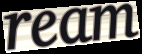
ream